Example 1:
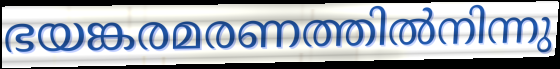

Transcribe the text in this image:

ഭയങ്കരമരണത്തിൽനിന്നു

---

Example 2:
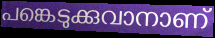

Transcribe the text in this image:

പങ്കെടുക്കുവാനാണ്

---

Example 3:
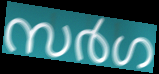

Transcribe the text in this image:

സർഗ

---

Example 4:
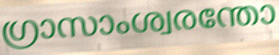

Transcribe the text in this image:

ഗ്രാസാംശ്വരന്തോ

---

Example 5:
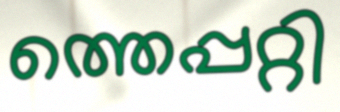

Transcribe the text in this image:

ത്തെപ്പറ്റി